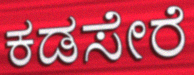
ಕಡಸೇರೆ